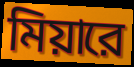
মিয়ারে